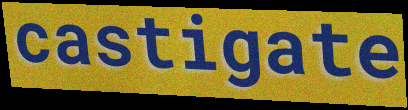
castigate